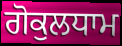
ਗੋਕੁਲਧਾਮ